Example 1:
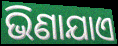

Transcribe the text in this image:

ଭିଣାଯାଏ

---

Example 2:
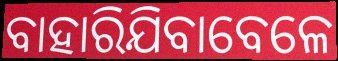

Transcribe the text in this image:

ବାହାରିଯିବାବେଳେ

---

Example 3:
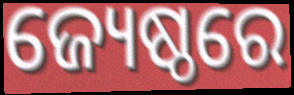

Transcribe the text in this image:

ଜ୍ୟେଷ୍ଠରେ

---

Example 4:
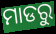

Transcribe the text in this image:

ମାଡରୁ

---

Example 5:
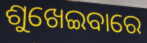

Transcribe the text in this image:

ଶୁଖେଇବାରେ